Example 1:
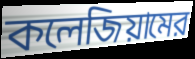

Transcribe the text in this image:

কলেজিয়ামের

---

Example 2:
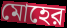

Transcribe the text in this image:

মোহের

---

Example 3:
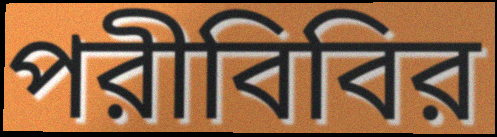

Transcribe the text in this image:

পরীবিবির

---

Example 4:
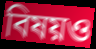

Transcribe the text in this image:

বিষয়ও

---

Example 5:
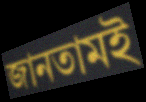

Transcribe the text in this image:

জানতামই